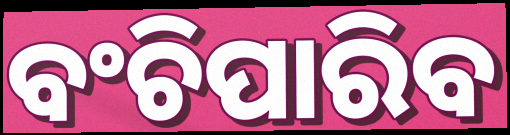
ବଂଚିପାରିବ